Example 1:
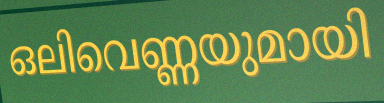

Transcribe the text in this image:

ഒലിവെണ്ണയുമായി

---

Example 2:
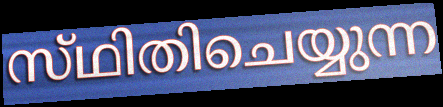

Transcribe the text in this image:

സ്‌ഥിതിചെയ്യുന്ന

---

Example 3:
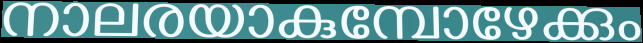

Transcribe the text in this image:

നാലരയാകുമ്പോഴേക്കും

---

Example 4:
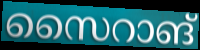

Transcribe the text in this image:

സൈറാങ്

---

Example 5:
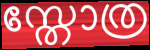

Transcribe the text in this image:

സ്തോത്ര